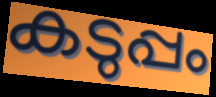
കടുപ്പം